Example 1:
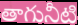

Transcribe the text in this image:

తాగునీటి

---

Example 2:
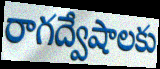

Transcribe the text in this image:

రాగద్వేషాలకు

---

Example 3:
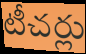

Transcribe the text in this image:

టీచర్లు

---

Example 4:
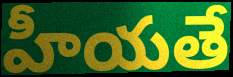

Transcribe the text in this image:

హీయతే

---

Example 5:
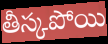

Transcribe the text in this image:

తీస్కపోయి